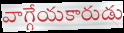
వాగ్గేయకారుడు